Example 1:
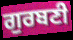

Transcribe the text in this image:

ਗੁਰਬਣੀ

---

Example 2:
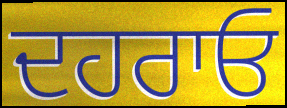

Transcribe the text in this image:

ਦਹਰਾਓ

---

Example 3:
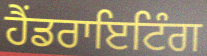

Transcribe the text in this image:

ਹੈਂਡਰਾਇਟਿੰਗ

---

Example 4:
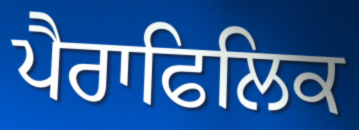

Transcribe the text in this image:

ਪੈਰਾਫਿਲਿਕ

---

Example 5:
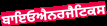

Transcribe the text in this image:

ਬਾਇਓਐਨਰਜੈਟਿਕਸ